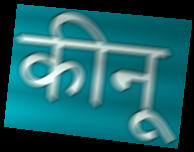
कीनू